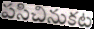
పసిచినుకట